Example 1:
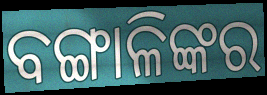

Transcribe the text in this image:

ବଙ୍ଗାଳିଙ୍କର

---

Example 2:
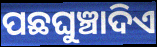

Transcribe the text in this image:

ପଛଘୁଞ୍ଚାଦିଏ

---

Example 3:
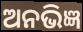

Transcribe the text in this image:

ଅନଭିଜ୍ଞ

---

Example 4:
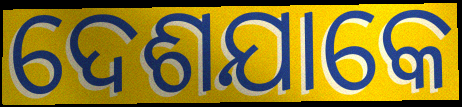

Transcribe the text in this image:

ଦେଶଯାକେ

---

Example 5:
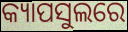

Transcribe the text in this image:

କ୍ୟାପସୁଲରେ